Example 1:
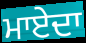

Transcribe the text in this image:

ਮਾਏਦਾ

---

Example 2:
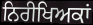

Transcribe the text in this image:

ਨਿਰੀਖਿਅਕਾਂ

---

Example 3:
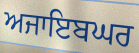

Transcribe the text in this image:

ਅਜਾਇਬਘਰ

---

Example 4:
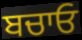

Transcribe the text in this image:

ਬਚਾਓ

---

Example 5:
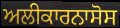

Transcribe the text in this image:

ਅਲੀਕਾਰਨਾਸੋਸ